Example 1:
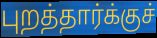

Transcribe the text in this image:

புறத்தார்க்குச்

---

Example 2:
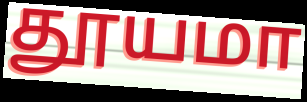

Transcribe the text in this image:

தூயமா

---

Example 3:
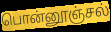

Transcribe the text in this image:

பொன்னூஞ்சல்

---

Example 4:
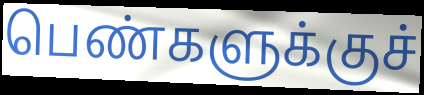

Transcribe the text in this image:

பெண்களுக்குச்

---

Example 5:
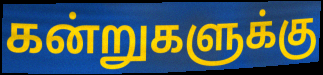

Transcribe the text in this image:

கன்றுகளுக்கு